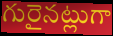
గురైనట్లుగా